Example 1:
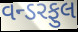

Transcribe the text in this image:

વન્ડરફુલ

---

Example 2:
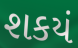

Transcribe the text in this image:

શકયં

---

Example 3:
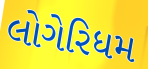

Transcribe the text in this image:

લોગેરિધમ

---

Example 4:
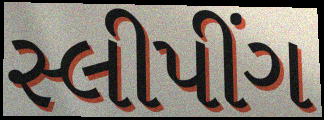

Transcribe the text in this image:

સ્લીપીંગ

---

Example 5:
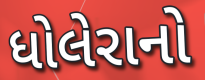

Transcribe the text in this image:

ધોલેરાનો